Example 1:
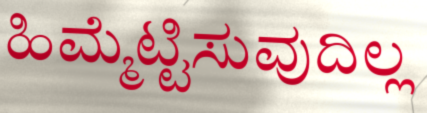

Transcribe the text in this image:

ಹಿಮ್ಮೆಟ್ಟಿಸುವುದಿಲ್ಲ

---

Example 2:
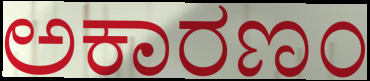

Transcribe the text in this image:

ಅಕಾರಣಂ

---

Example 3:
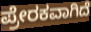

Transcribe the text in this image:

ಪ್ರೇರಕವಾಗಿದೆ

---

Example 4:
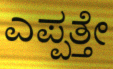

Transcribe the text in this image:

ಎಪ್ಪತ್ತೇ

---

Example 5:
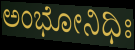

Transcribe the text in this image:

ಅಂಭೋನಿಧಿಃ